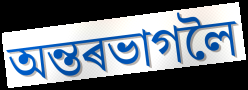
অন্তৰভাগলৈ